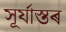
সূৰ্যাস্তৰ